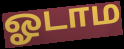
ஓடாம